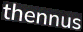
thennus